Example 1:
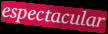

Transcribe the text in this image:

espectacular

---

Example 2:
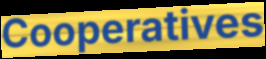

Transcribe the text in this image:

Cooperatives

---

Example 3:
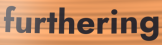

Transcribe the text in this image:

furthering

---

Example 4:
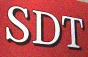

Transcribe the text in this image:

SDT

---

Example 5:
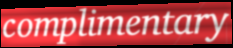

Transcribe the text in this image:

complimentary